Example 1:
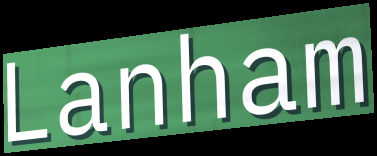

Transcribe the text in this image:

Lanham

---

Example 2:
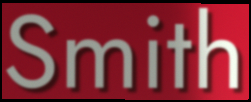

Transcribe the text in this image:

Smith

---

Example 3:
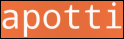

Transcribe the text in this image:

apotti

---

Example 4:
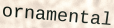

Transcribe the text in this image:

ornamental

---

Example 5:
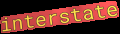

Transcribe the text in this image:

interstate